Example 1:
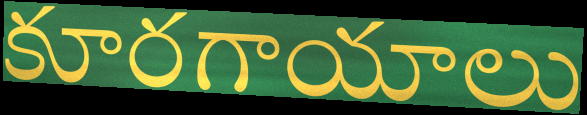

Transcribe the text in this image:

కూరగాయాలు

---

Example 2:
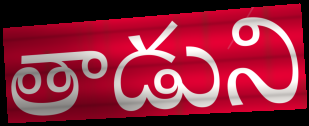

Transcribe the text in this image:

తాడుని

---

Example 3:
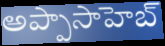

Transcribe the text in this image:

అప్పాసాహెబ్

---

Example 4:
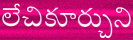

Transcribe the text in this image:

లేచికూర్చుని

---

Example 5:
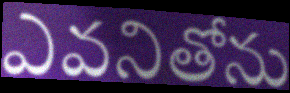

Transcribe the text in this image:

ఎవనితోను